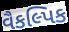
વૈકલ્પિક